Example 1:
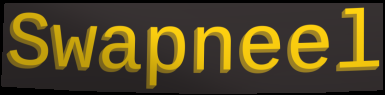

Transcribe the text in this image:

Swapneel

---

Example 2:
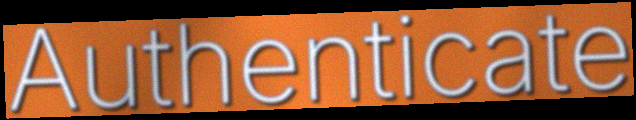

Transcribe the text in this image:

Authenticate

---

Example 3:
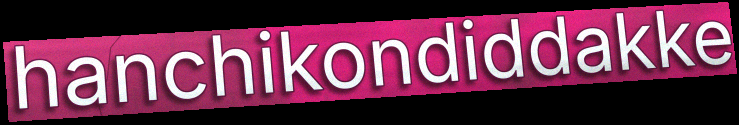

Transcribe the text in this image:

hanchikondiddakke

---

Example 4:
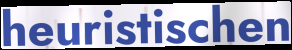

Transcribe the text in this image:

heuristischen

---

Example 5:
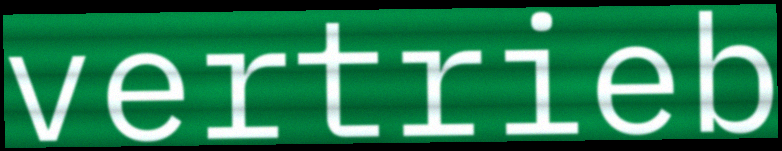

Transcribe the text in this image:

vertrieb